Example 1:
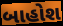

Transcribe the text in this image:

બાહોશ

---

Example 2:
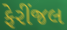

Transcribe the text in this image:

ફેરીંજલ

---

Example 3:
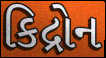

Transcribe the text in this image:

કિદ્રોન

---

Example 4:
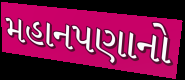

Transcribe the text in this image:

મહાનપણાનો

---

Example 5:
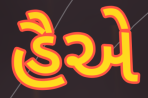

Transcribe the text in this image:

હૈએ